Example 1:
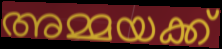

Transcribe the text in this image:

അമ്മയക്ക്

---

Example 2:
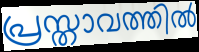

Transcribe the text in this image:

പ്രസ്താവത്തിൽ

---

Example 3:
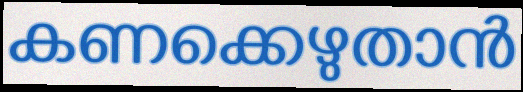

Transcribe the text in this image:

കണക്കെഴുതാൻ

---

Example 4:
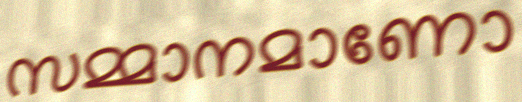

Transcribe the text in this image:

സമ്മാനമാണോ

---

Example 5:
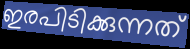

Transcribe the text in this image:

ഇരപിടിക്കുന്നത്